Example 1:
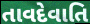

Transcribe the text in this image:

તાવદેવાતિ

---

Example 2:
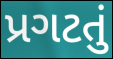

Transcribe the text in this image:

પ્રગટતું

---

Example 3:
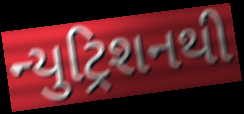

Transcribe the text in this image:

ન્યુટ્રિશનથી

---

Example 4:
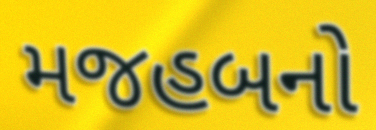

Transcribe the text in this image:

મજહબનો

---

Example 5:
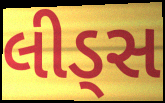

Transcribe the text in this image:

લીડ્સ